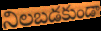
నిలబడకుండా